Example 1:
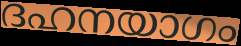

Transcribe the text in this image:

ദഹനയാഗം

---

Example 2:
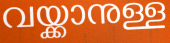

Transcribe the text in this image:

വയ്ക്കാനുള്ള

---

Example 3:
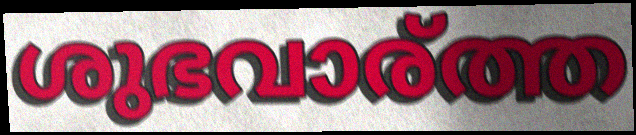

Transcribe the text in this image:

ശുഭവാര്ത്ത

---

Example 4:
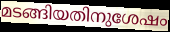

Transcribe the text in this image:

മടങ്ങിയതിനുശേഷം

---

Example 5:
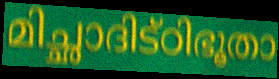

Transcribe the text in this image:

മിച്ഛാദിട്ഠിഭൂതാ